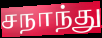
சநாந்து